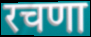
रचणा